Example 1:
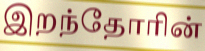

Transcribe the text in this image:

இறந்தோரின்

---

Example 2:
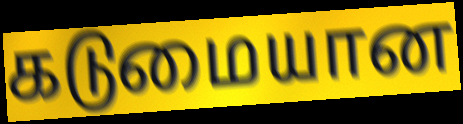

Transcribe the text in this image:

கடுமையான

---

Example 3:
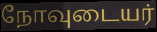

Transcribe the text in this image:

நோவுடையர்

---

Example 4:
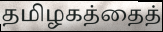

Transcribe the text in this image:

தமிழகத்தைத்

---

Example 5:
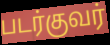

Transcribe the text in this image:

படர்குவர்